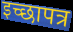
इच्छापत्र